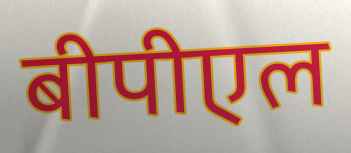
बीपीएल